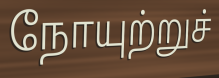
நோயுற்றுச்